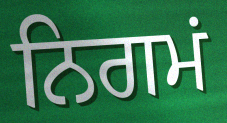
ਨਿਗਮਂ